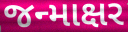
જન્માક્ષર